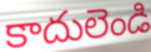
కాదులెండి